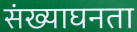
संख्याघनता